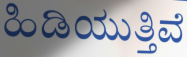
ಹಿಡಿಯುತ್ತಿವೆ